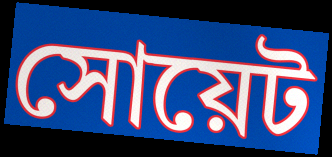
সোয়েট